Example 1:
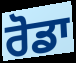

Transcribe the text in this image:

ਰੋਡਾ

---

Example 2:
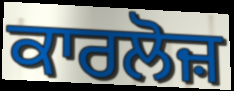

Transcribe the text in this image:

ਕਾਰਲੋਜ਼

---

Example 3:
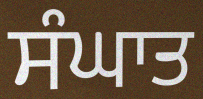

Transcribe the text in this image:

ਸੰਘਾਤ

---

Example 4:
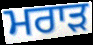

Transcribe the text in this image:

ਮਰਾੜ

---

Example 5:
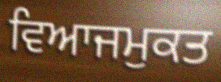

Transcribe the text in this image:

ਵਿਆਜਮੁਕਤ